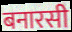
बनारसी